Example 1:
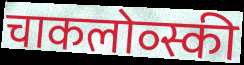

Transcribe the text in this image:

चाकलोव्स्की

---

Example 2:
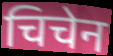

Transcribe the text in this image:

चिचेन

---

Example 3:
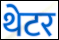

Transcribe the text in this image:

थेटर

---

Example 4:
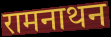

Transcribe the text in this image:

रामनाथन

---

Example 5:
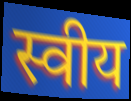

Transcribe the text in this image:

स्वीय